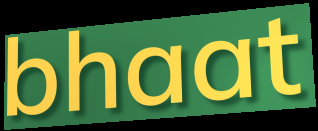
bhaat